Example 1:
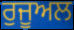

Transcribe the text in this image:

ਰੁਜੂਅਲ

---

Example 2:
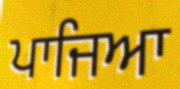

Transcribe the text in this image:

ਪਾਜਿਆ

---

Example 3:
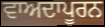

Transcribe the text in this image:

ਵਾਅਦਾਪੂਰਨ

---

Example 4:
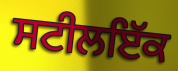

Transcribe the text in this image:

ਸਟੀਲਇੱਕ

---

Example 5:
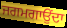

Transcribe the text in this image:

ਜਗਮਗਾਉਂਦਾ